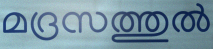
മദ്രസത്തുൽ